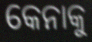
କେନାକୁ